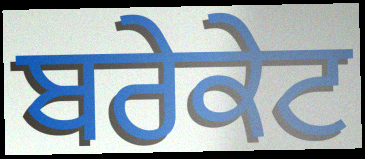
ਬਰੇਕੇਟ